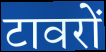
टावरों